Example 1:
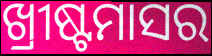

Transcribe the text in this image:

ଖ୍ରୀଷ୍ଟମାସର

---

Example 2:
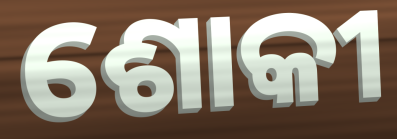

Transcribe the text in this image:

ଶୋକୀ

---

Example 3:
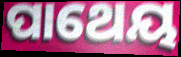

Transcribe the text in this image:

ପାଥେୟ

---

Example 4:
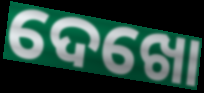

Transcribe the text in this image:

ଦେଖୋ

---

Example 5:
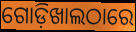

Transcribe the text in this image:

ଗୋଡ଼ିଖାଲଠାରେ